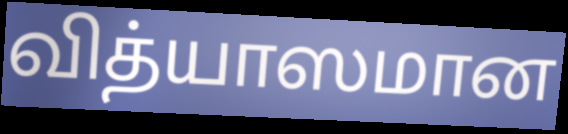
வித்யாஸமான